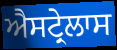
ਐਸਟ੍ਰੇਲਾਸ